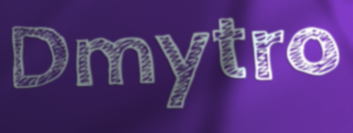
Dmytro